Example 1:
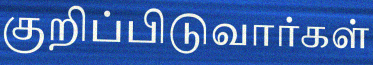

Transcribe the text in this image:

குறிப்பிடுவார்கள்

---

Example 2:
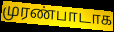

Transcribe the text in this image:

முரண்பாடாக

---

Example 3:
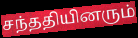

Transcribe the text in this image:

சந்ததியினரும்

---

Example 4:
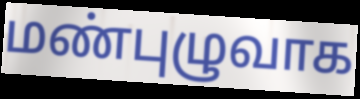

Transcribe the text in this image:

மண்புழுவாக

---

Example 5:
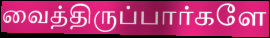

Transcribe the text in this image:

வைத்திருப்பார்களே